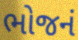
ભોજનં